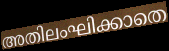
അതിലംഘിക്കാതെ